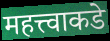
महत्त्वाकडे